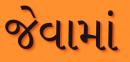
જેવામાં